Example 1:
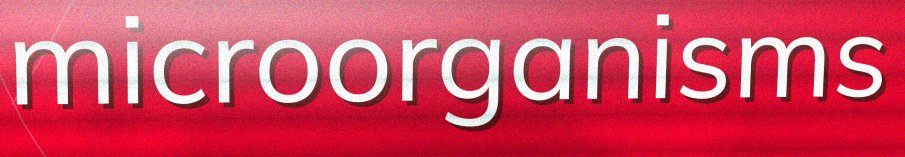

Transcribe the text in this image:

microorganisms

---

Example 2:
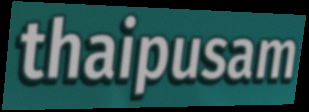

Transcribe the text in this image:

thaipusam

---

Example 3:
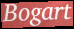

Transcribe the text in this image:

Bogart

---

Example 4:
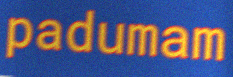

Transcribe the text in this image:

padumam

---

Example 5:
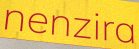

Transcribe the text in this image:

nenzira